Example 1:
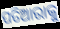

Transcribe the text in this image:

ପତିଆରାକୁ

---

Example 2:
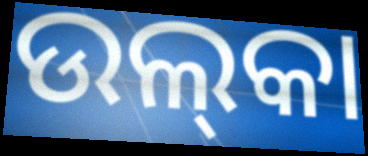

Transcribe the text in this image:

ଉଲ୍‍କା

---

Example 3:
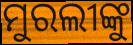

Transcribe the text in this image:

ମୁରଲୀଙ୍କୁ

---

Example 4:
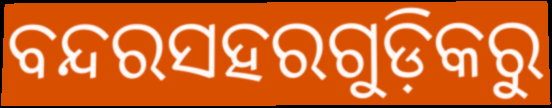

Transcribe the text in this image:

ବନ୍ଦରସହରଗୁଡ଼ିକରୁ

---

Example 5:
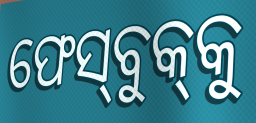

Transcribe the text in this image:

ଫେସ୍‌ବୁକ୍‌କୁ